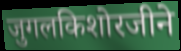
जुगलकिशोरजीने